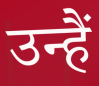
उन्‍हैं